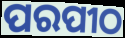
ପରପୀଠ